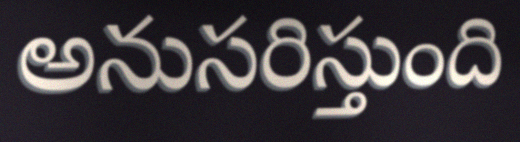
అనుసరిస్తుంది